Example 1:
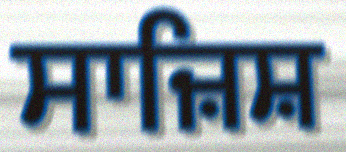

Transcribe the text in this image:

ਸਾਜ਼ਿਸ਼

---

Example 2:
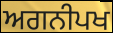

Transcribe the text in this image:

ਅਗਨੀਪਖ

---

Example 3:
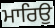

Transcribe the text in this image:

ਮਾਰਿਉ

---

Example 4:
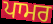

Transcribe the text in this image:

ਪਾਮਰ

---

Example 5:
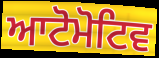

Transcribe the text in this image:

ਆਟੋਮੋਟਿਵ